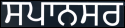
ਸਪਾਨਸਰ